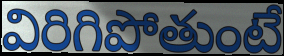
విరిగిపోతుంటే